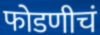
फोडणीचं